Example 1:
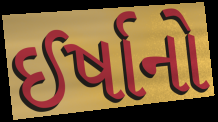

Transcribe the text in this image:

ઈર્ષાનો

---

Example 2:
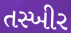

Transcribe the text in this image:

તસ્ખીર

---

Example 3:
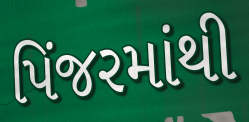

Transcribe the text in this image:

પિંજરમાંથી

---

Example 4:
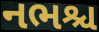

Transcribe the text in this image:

નભશ્ચ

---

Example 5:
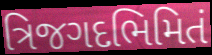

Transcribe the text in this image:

ત્રિજગદભિમિતં